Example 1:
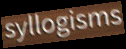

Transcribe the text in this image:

syllogisms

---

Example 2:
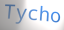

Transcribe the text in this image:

Tycho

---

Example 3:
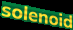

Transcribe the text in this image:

solenoid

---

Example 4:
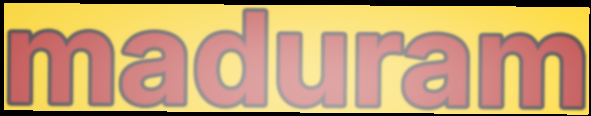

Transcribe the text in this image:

maduram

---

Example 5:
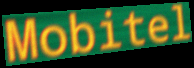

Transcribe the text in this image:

Mobitel